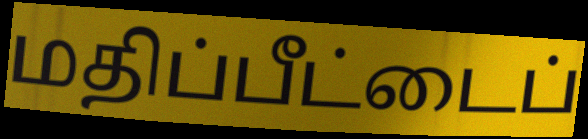
மதிப்பீட்டைப்